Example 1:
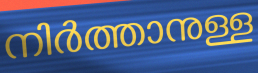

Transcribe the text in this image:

നിർത്താനുള്ള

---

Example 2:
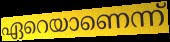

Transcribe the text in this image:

ഏറെയാണെന്ന്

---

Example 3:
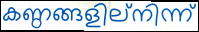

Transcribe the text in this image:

കണ്ഠങ്ങളില്നിന്ന്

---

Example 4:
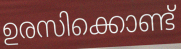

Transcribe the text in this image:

ഉരസിക്കൊണ്ട്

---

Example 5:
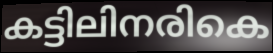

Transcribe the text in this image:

കട്ടിലിനരികെ